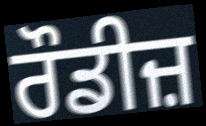
ਰੌਡੀਜ਼